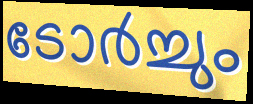
ടോർച്ചും